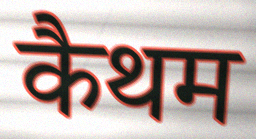
कैथम